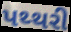
પથ્થરી